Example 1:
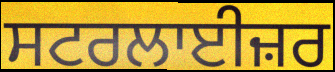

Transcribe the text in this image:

ਸਟਰਲਾਈਜ਼ਰ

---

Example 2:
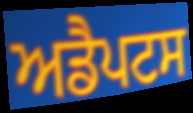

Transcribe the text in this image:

ਅਡੈਪਟਸ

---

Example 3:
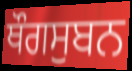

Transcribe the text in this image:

ਥੌਗਸੁਬਨ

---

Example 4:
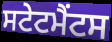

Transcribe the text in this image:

ਸਟੇਟਮੈਂਟਸ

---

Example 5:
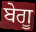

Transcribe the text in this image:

ਬੇਗੂ